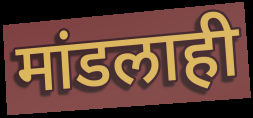
मांडलाही